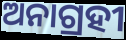
ଅନାଗ୍ରହୀ